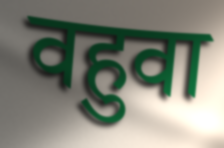
वहुवा